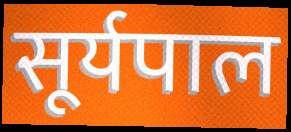
सूर्यपाल